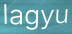
lagyu